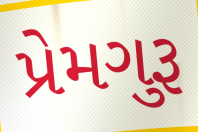
પ્રેમગુરૂ